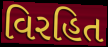
વિરહિત